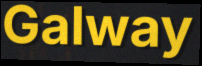
Galway